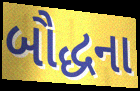
બૌદ્ધના